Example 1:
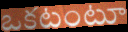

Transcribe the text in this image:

ఒకటంటూ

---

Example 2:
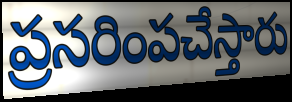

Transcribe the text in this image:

ప్రసరింపచేస్తారు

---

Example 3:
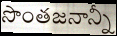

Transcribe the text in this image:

సొంతజనాన్నీ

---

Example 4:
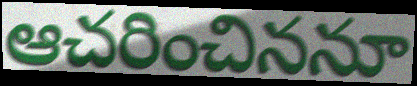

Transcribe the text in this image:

ఆచరించిననూ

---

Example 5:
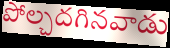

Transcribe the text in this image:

పోల్చదగినవాడు